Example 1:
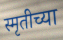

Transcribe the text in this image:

स्मृतीच्या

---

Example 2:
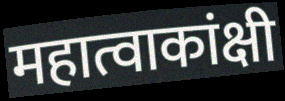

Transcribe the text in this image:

महात्वाकांक्षी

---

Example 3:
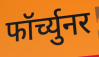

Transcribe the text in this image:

फॉर्च्युनर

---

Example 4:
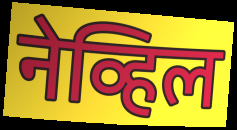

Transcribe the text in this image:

नेव्हिल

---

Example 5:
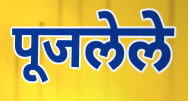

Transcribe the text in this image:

पूजलेले